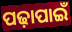
ପଢ଼ାପାଇଁ